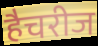
हैचरीज